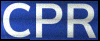
CPR